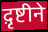
द़ृष्टीने